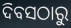
ଦିବସଠାରୁ